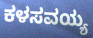
ಕಳಸವಯ್ಯ